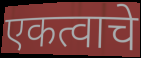
एकत्वाचे